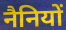
नैनियों